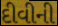
દીવીની